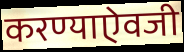
करण्याऐवजी